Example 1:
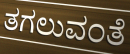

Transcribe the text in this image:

ತಗಲುವಂತೆ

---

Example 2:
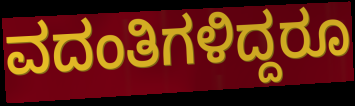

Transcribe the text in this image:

ವದಂತಿಗಳಿದ್ದರೂ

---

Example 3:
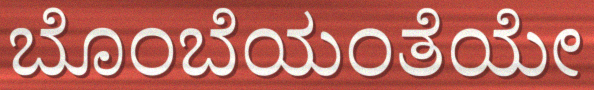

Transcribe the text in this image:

ಬೊಂಬೆಯಂತೆಯೇ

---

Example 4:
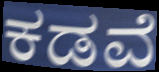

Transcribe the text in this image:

ಕಡವೆ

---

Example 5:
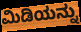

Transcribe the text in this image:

ಮಿಡಿಯನ್ನು